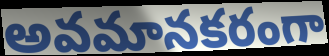
అవమానకరంగా